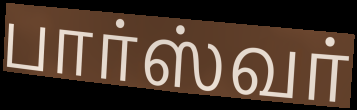
பார்ஸ்வர்